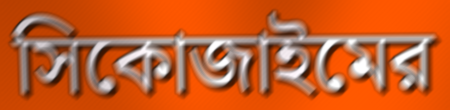
সিকোজাইমের